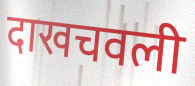
दाखचवली